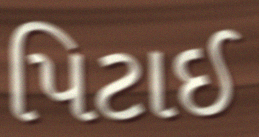
પિટાઈ